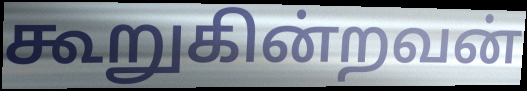
கூறுகின்றவன்